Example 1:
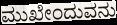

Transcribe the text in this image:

ಮುಖೇಂದುವನು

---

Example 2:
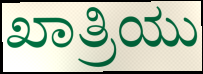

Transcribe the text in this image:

ಖಾತ್ರಿಯು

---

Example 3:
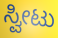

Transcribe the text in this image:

ಸ್ವೀಟು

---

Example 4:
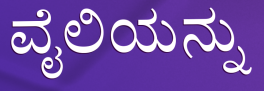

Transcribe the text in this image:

ವೈಲಿಯನ್ನು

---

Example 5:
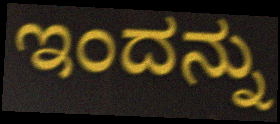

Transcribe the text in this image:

ಇಂದನ್ನು